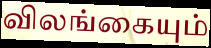
விலங்கையும்